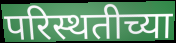
परिस्थतीच्या